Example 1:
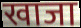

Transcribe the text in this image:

खाजा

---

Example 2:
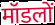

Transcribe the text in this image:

मॉडलों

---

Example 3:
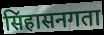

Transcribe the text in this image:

सिंहासनगता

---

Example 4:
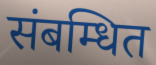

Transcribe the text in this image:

संबम्धित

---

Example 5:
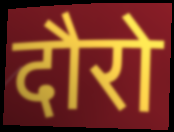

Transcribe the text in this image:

दौरो